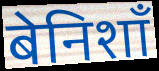
बेनिशाँ